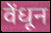
वेंधून